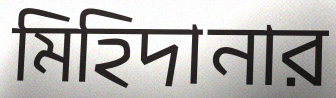
মিহিদানার